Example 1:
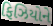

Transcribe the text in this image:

ફિઝિયોને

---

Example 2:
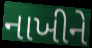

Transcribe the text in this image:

નાખીને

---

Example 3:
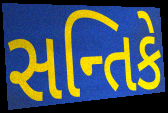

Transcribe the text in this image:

સન્તિકે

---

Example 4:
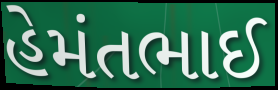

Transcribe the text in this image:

હેમંતભાઈ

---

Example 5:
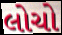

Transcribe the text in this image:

લોચો